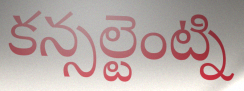
కన్సల్టెంట్ని